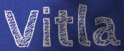
Vitla